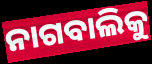
ନାଗବାଲିକୁ